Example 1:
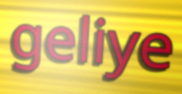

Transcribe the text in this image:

geliye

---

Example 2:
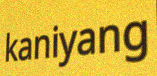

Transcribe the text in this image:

kaniyang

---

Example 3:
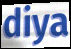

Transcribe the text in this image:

diya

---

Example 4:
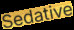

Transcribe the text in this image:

Sedative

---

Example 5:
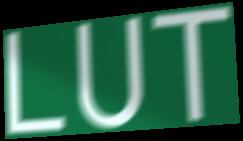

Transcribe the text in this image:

LUT